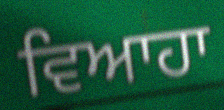
ਵਿਆਹਾ